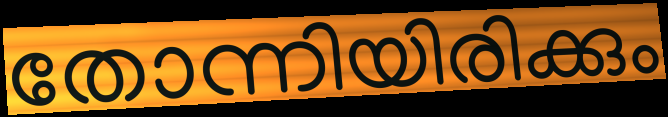
തോന്നിയിരിക്കും